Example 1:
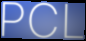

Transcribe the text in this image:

PCL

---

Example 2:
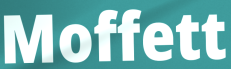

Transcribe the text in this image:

Moffett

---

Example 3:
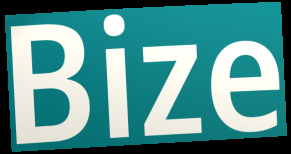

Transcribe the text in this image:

Bize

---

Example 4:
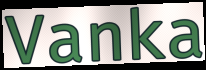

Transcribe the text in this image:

Vanka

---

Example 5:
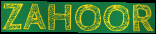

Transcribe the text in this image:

ZAHOOR